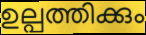
ഉല്പത്തിക്കും